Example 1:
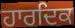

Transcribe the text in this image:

ਹਾਰਦਿਕ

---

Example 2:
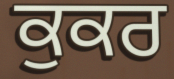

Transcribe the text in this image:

ਕੁਕਰ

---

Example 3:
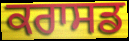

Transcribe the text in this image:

ਕਰਾਸਡ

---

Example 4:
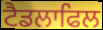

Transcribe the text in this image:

ਟੈਡਲਾਫਿਲ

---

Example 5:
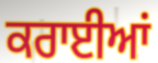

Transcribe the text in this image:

ਕਰਾਈਆਂ